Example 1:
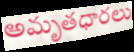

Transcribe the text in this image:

అమృతధారలు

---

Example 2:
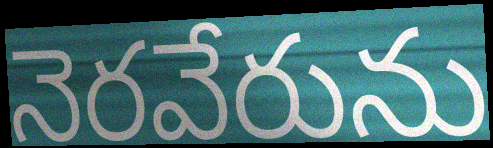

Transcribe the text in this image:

నెరవేరును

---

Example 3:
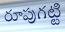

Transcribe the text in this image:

రూపుగట్టి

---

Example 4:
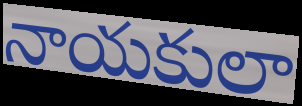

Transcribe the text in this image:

నాయకులా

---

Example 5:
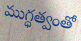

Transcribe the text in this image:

ముగ్ధత్వంతో